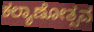
ಕಲ್ಯಾಣೋತ್ಸವ